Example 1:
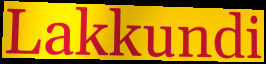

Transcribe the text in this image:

Lakkundi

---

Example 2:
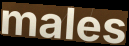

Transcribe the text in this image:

males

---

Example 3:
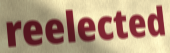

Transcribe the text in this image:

reelected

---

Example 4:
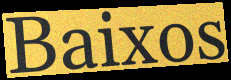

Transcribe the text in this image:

Baixos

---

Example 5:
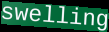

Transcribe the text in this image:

swelling